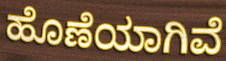
ಹೊಣೆಯಾಗಿವೆ